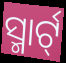
ସ୍ମାର୍ଟ୍